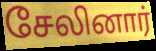
சேலினார்